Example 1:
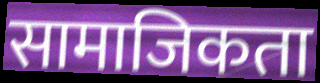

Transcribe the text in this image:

सामाजिकता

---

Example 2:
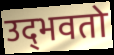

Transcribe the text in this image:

उद्‌भवतो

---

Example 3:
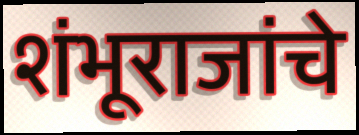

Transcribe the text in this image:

शंभूराजांचे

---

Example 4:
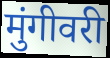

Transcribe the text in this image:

मुंगीवरी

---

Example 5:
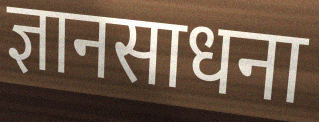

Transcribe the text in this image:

ज्ञानसाधना